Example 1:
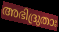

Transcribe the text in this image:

അഭിദ്രുതാഃ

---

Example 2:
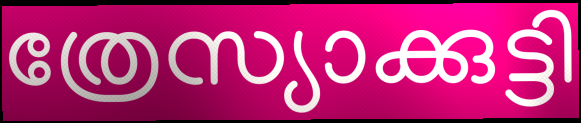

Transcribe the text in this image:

ത്രേസ്യാക്കുട്ടി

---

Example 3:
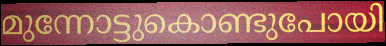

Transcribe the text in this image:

മുന്നോട്ടുകൊണ്ടുപോയി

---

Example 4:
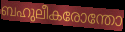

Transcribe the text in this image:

ബഹുലീകരോന്തോ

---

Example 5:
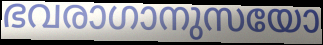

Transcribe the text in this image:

ഭവരാഗാനുസയോ